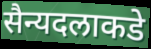
सैन्यदलाकडे